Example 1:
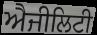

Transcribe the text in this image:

ਐਜੀਲਿਟੀ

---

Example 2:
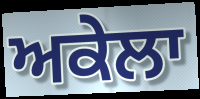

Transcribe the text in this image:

ਅਕੇਲਾ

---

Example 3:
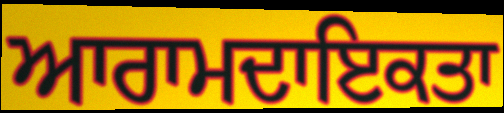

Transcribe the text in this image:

ਆਰਾਮਦਾਇਕਤਾ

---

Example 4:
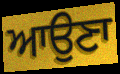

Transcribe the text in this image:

ਆਉਣਾ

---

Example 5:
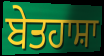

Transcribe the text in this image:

ਬੇਤਹਾਸ਼ਾ